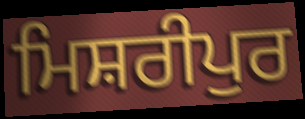
ਮਿਸ਼ਰੀਪੁਰ